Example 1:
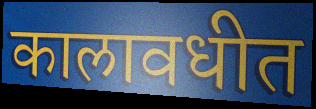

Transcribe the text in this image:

कालावधीत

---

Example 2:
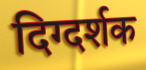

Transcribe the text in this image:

दिग्दर्शक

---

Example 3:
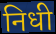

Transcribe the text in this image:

निधी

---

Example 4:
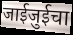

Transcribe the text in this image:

जाईजुईचा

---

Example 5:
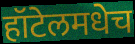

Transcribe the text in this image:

हॉटेलमधेच